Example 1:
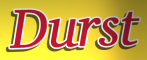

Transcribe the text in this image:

Durst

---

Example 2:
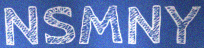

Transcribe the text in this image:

NSMNY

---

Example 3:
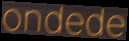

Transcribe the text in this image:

ondede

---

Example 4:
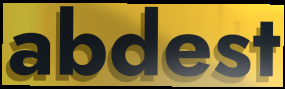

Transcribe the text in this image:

abdest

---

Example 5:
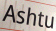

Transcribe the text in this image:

Ashtu